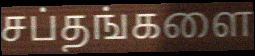
சப்தங்களை